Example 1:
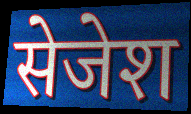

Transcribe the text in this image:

सेजेश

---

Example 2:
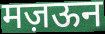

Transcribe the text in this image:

मज़ऊन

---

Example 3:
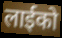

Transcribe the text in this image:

लाईको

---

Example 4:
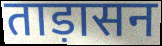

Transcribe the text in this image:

ताड़ासन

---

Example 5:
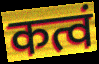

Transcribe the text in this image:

कत्वं